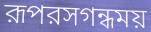
রূপরসগন্ধময়